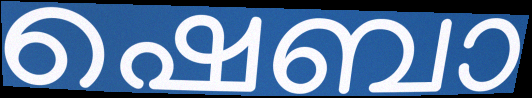
ഷെബാ